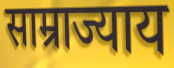
साम्राज्याय